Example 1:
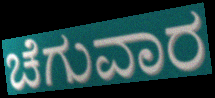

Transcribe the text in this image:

ಚೆಗುವಾರ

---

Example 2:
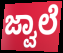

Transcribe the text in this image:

ಜ್ವಾಲೆ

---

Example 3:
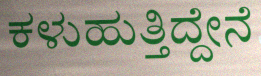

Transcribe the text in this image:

ಕಳುಹುತ್ತಿದ್ದೇನೆ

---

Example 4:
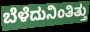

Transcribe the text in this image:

ಬೆಳೆದುನಿಂತಿತ್ತು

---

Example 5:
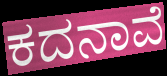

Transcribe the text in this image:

ಕದನಾವೆ